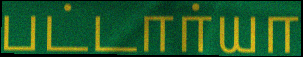
பட்டார்யா